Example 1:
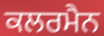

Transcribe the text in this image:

ਕਲਰਮੈਨ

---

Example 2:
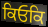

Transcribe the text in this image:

ਕਿਓਕਿ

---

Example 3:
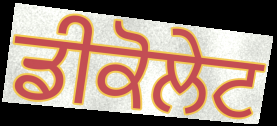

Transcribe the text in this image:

ਡੀਕੋਲੇਟ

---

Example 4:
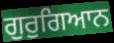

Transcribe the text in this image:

ਗੁਰੁਗਿਆਨ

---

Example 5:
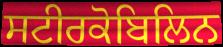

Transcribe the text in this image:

ਸਟੀਰਕੋਬਿਲਿਨ